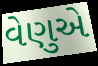
વેણુએ